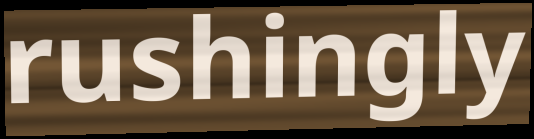
rushingly